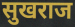
सुखराज